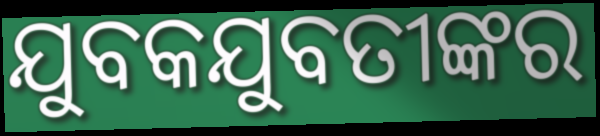
ଯୁବକଯୁବତୀଙ୍କର